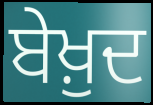
ਬੇਖ਼ੁਦ